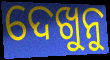
ଦେଖୁନୁ